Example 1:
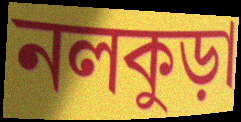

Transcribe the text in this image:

নলকুড়া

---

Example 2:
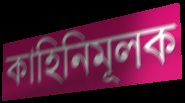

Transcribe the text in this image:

কাহিনিমূলক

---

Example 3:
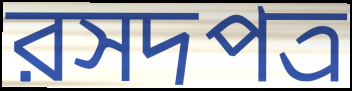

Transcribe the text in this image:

রসদপত্র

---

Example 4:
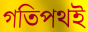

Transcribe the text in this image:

গতিপথই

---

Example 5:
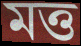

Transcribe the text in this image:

মত্ত